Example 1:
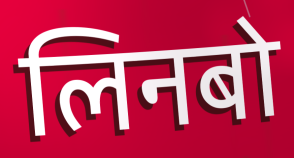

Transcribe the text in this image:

लिनबो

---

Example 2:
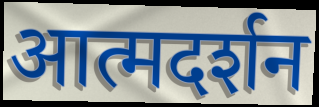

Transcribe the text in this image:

आत्मदर्शन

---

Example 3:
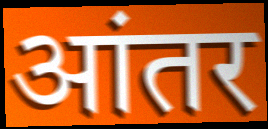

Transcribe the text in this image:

आंतर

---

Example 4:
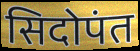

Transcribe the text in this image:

सिदोपंत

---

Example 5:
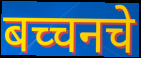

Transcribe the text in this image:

बच्चनचे